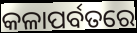
କଳାପର୍ବତରେ